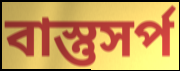
বাস্তুসর্প